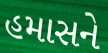
હમાસને